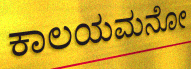
ಕಾಲಯಮನೋ